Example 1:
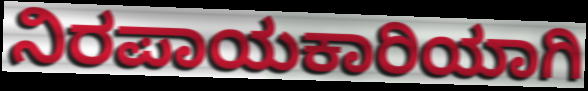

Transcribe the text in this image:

ನಿರಪಾಯಕಾರಿಯಾಗಿ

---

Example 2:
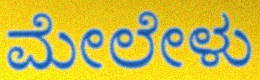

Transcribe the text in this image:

ಮೇಲೇಳು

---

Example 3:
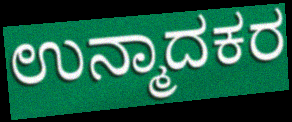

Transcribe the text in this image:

ಉನ್ಮಾದಕರ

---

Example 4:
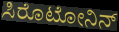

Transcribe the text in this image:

ಸಿರೊಟೋನಿನ್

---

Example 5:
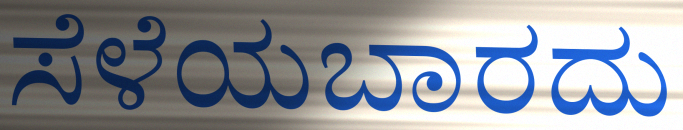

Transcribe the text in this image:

ಸೆಳೆಯಬಾರದು